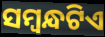
ସମ୍ୱନ୍ଧଟିଏ